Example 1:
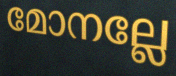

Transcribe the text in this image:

മോനല്ലേ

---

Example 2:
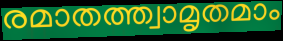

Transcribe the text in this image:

രമാതത്ത്വാമൃതമാം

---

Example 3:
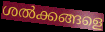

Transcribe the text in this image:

ശൽക്കങ്ങളെ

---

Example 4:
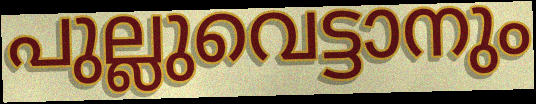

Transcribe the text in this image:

പുല്ലുവെട്ടാനും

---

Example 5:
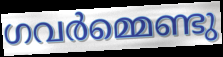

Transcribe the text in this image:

ഗവർമ്മെണ്ടു